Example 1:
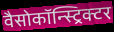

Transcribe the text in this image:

वैसोकॉन्स्ट्रिक्टर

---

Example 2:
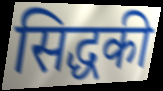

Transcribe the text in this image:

सिद्धकी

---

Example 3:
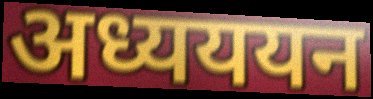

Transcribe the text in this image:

अध्यययन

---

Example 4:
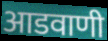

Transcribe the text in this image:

आडवाणी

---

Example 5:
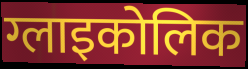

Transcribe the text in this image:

ग्लाइकोलिक